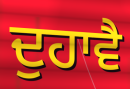
ਦੁਹਾਵੈ